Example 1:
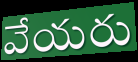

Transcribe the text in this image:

వేయరు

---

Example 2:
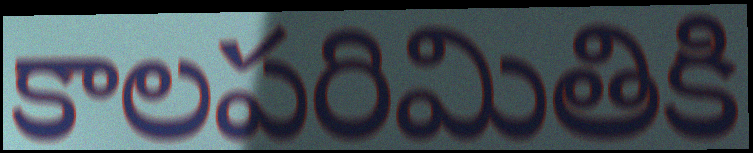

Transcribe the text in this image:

కాలపరిమితికి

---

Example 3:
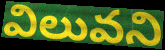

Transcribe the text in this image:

విలువని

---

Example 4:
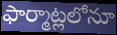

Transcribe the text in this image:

ఫార్మాట్లలోనూ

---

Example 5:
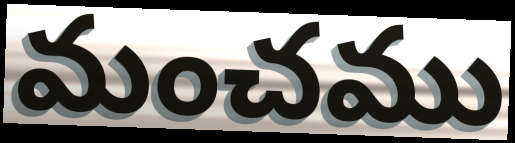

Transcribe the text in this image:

మంచము